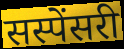
सस्पेंसरी